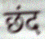
छंद